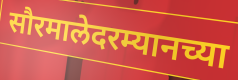
सौरमालेदरम्यानच्या